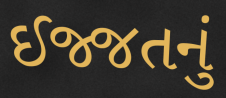
ઈજ્જતનું